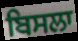
ਬਿਸਲਾ